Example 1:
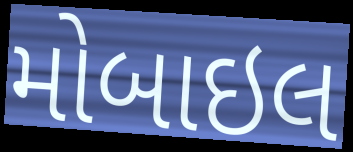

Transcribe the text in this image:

મોબાઇલ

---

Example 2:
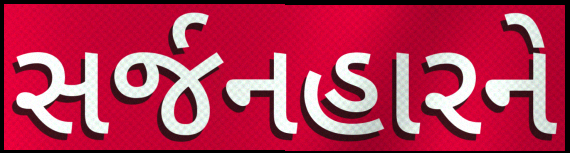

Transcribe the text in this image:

સર્જનહારને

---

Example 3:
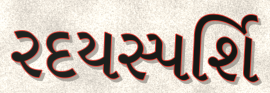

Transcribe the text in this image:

રદયસ્પર્શિ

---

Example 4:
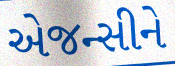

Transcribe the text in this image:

એજન્સીને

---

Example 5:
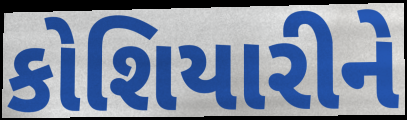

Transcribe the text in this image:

કોશિયારીને